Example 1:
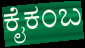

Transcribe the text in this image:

ಕೈಕಂಬ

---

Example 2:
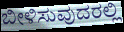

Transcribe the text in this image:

ಬೀಳಿಸುವುದರಲ್ಲಿ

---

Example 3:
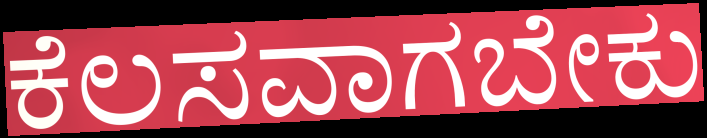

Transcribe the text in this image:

ಕೆಲಸವಾಗಬೇಕು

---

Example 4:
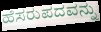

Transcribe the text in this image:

ಹೆಸರುಪದವನ್ನು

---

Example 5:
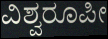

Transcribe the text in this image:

ವಿಶ್ವರೂಪೀ